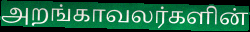
அறங்காவலர்களின்